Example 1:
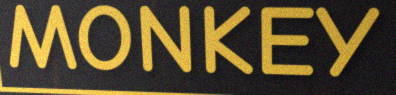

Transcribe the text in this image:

MONKEY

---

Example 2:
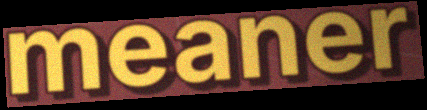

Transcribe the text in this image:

meaner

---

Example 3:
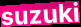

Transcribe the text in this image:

suzuki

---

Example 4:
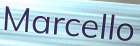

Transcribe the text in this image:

Marcello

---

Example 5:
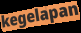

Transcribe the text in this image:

kegelapan